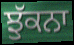
ਝੁੱਕਨਾ